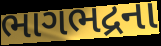
ભાગભદ્રના